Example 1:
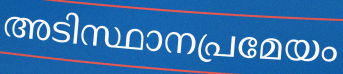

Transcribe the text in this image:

അടിസ്ഥാനപ്രമേയം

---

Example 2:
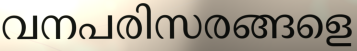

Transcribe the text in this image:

വനപരിസരങ്ങളെ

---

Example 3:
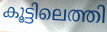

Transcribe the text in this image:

കൂട്ടിലെത്തി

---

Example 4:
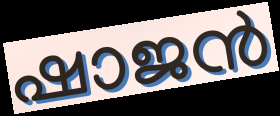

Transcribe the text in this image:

ഷാജൻ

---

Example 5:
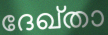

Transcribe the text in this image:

ദേഖ്താ